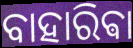
ବାହାରିଵା